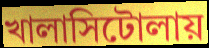
খালাসিটোলায়